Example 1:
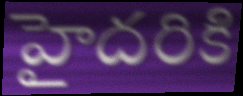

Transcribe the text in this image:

హైదరికి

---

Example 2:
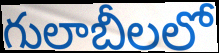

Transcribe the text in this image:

గులాబీలలో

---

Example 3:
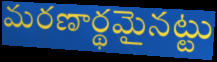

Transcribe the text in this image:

మరణార్థమైనట్టు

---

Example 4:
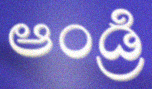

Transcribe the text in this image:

ఆండ్రి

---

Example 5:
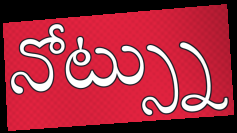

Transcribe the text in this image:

నోట్స్ను